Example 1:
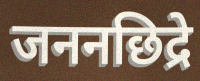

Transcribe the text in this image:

जननछिद्रे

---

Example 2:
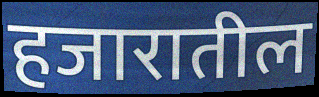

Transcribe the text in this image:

हजारातील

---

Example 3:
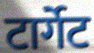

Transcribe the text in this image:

टार्गेट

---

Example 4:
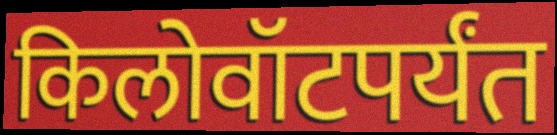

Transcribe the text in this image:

किलोवॉटपर्यंत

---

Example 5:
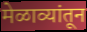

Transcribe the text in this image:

मेळाव्यांतून